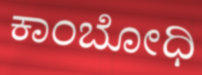
ಕಾಂಬೋಧಿ